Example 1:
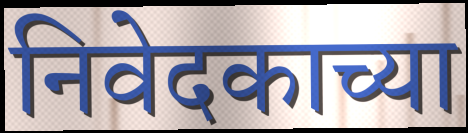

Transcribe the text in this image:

निवेदकाच्या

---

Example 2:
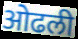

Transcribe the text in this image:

ओढली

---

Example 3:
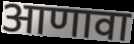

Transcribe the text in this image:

आणावा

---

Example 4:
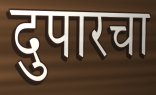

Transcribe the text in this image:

दुपारचा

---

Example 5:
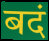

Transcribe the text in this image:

बदं